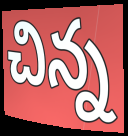
చిన్న